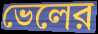
ভেলের